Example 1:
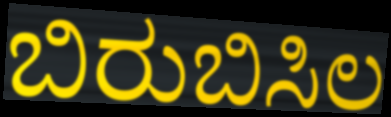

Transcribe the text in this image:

ಬಿರುಬಿಸಿಲ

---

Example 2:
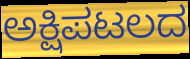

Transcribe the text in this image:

ಅಕ್ಷಿಪಟಲದ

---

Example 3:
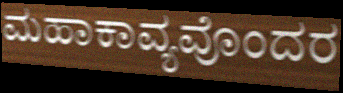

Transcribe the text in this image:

ಮಹಾಕಾವ್ಯವೊಂದರ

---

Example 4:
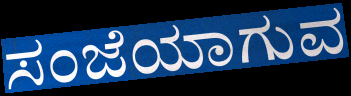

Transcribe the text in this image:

ಸಂಜೆಯಾಗುವ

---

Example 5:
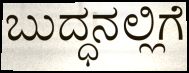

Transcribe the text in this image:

ಬುದ್ಧನಲ್ಲಿಗೆ